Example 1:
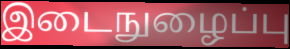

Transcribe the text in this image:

இடைநுழைப்பு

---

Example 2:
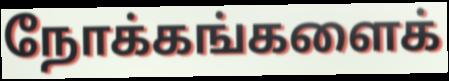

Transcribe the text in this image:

நோக்கங்களைக்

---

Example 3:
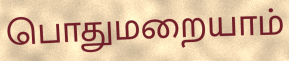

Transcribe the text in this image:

பொதுமறையாம்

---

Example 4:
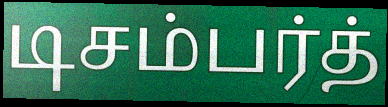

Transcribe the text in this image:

டிசம்பர்த்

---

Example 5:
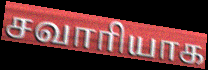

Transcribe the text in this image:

சவாரியாக